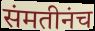
संमतीनंच